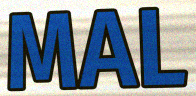
MAL